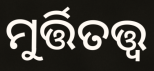
ମୁର୍ତ୍ତିତତ୍ତ୍ବ